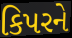
કિપરને